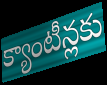
క్యాంటీన్లకు